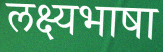
लक्ष्यभाषा